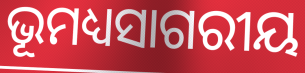
ଭୂମଧ୍ୟସାଗରୀୟ